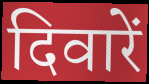
दिवारें